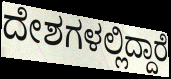
ದೇಶಗಳಲ್ಲಿದ್ದಾರೆ